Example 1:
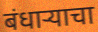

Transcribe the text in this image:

बंधार्‍याचा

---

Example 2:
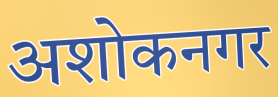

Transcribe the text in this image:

अशोकनगर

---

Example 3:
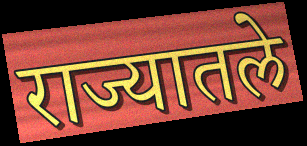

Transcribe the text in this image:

राज्यातले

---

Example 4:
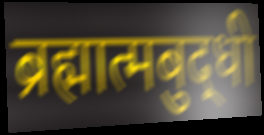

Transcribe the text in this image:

ब्रह्मात्मबुद्धी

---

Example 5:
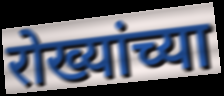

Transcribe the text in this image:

रोख्यांच्या